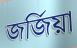
জর্জিয়া